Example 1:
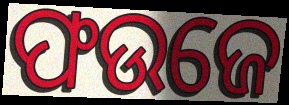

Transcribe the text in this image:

ଫଉଜେ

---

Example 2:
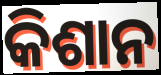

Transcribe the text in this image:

କିଶାନ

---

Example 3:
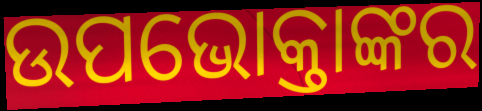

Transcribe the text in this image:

ଉପଭୋକ୍ତାଙ୍କର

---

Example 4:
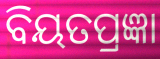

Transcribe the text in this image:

ବିୟତପ୍ରଜ୍ଞା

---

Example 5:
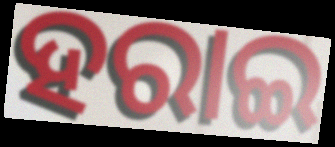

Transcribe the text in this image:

ହରାଇ